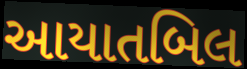
આયાતબિલ